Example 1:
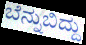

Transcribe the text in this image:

ಬೆನ್ನುಬಿದ್ದು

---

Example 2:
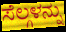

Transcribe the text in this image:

ಸೆಲ್ಗಳನ್ನು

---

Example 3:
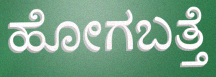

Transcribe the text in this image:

ಹೋಗಬತ್ತೆ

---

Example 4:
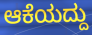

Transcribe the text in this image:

ಆಕೆಯದ್ದು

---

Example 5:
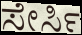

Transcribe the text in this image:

ಸೇರ್ಸಿ